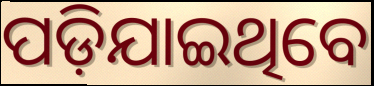
ପଡ଼ିଯାଇଥିବେ